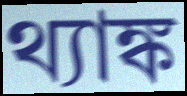
থ্যাঙ্ক